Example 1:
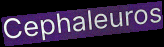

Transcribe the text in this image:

Cephaleuros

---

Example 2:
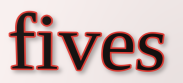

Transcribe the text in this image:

fives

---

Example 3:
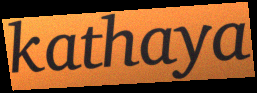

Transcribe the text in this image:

kathaya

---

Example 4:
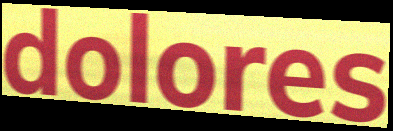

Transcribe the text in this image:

dolores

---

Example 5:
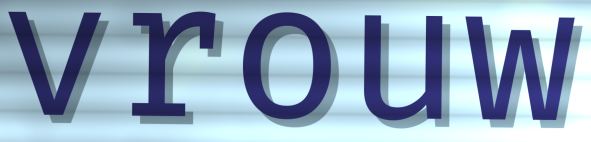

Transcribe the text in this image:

vrouw